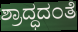
ಶ್ರಾದ್ಧದಂತೆ